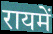
रायमें